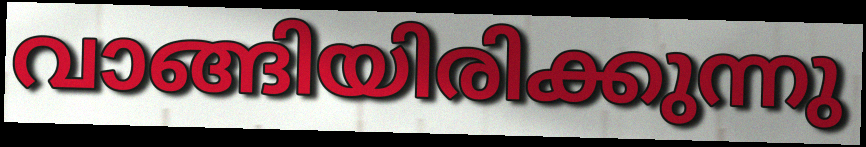
വാങ്ങിയിരിക്കുന്നു